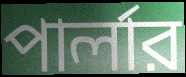
পার্লার